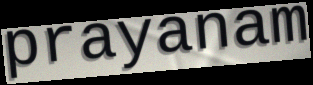
prayanam